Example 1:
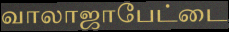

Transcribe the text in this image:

வாலாஜாபேட்டை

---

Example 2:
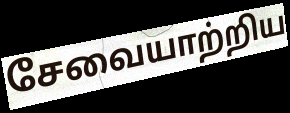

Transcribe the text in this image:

சேவையாற்றிய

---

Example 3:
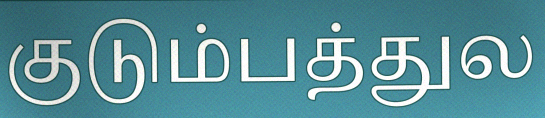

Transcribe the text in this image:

குடும்பத்துல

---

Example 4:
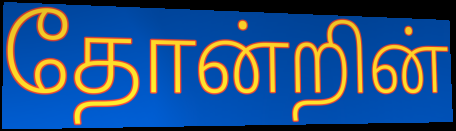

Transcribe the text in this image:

தோன்றின்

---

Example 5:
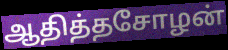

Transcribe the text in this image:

ஆதித்தசோழன்